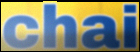
chai